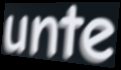
unte